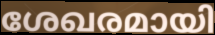
ശേഖരമായി